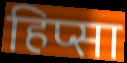
हिप्सा